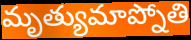
మృత్యుమాప్నోతి